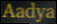
Aadya